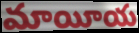
మాయీయ